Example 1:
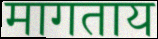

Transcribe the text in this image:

मागताय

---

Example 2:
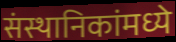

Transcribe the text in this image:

संस्थानिकांमध्ये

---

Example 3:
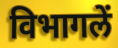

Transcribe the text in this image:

विभागलें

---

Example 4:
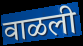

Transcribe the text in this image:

वाळली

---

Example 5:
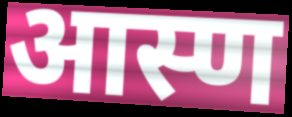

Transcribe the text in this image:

आस्ण